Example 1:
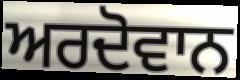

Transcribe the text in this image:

ਅਰਦੋਵਾਨ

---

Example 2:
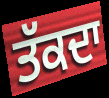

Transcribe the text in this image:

ਤੱਕਦਾ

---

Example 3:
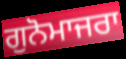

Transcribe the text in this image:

ਗੁਨੋਮਾਜਰਾ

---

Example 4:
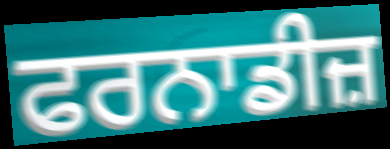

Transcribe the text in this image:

ਫਰਨਾਡੀਜ਼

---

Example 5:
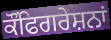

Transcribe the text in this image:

ਕੌਂਫਿਗਰੇਸ਼ਨਾਂ